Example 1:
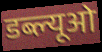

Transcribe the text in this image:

डब्ल्यूओ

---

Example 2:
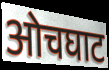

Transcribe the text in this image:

ओचघाट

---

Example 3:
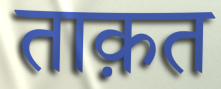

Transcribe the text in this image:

ताक़त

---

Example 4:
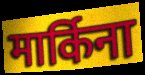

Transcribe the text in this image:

मार्किना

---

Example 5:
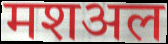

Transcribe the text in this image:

मशअल